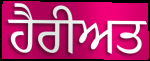
ਹੈਰੀਅਤ